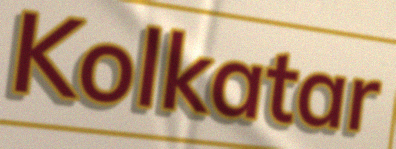
Kolkatar